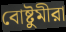
বোষ্টুমীরা